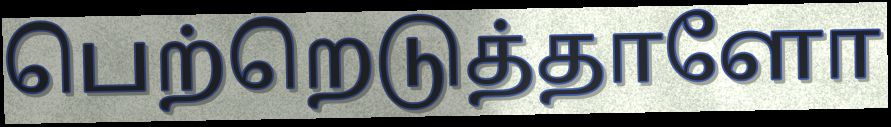
பெற்றெடுத்தாளோ